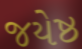
જયેષ્ઠ